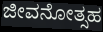
ಜೀವನೋತ್ಸಹ